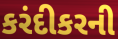
કરંદીકરની